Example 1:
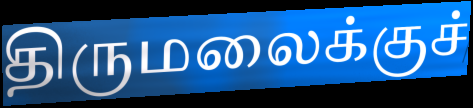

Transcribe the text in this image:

திருமலைக்குச்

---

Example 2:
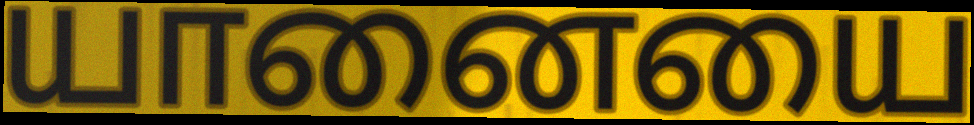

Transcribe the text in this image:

யானையை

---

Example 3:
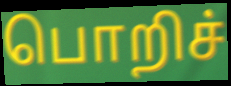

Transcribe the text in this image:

பொறிச்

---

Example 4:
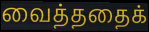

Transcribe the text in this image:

வைத்ததைக்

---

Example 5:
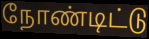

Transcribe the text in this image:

நோண்டிட்டு